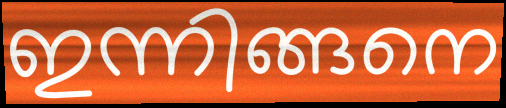
ഇന്നിങ്ങനെ